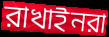
রাখাইনরা